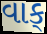
વાક્